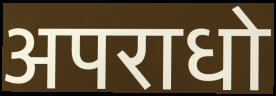
अपराधो